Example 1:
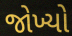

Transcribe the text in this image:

જોખ્યો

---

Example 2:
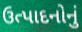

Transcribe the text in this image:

ઉત્પાદનોનું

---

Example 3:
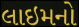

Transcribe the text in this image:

લાઇમનો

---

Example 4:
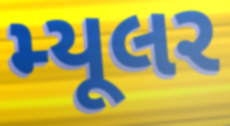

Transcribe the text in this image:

મ્યૂલર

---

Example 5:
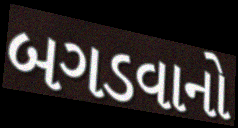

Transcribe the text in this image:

બગડવાનો